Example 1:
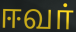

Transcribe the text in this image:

ஈவர்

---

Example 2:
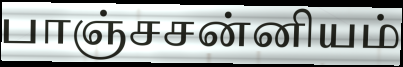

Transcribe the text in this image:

பாஞ்சசன்னியம்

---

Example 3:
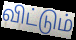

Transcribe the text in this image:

விட்டும்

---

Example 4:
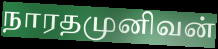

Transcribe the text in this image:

நாரதமுனிவன்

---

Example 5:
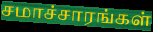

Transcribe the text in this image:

சமாச்சாரங்கள்